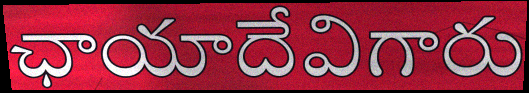
ఛాయాదేవిగారు